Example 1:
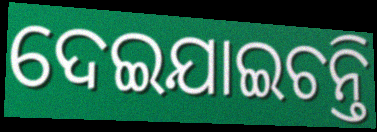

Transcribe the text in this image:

ଦେଇଯାଇଚନ୍ତି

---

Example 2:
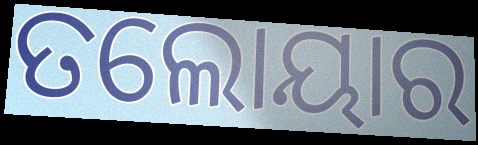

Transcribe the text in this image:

ତଲୋୟାର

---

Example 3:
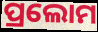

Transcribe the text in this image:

ପ୍ରଲୋମ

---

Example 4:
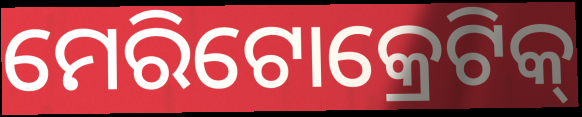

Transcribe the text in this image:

ମେରିଟୋକ୍ରେଟିକ୍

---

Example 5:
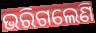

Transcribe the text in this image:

ଭରିଗଲେଣି